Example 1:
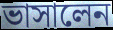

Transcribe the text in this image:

ভাসালেন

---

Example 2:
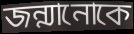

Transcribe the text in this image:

জন্মানোকে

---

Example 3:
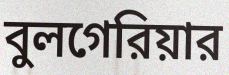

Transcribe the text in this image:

বুলগেরিয়ার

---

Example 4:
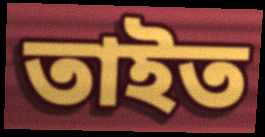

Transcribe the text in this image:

তাইত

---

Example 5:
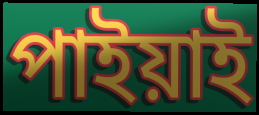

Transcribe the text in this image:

পাইয়াই